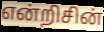
என்றிசின்